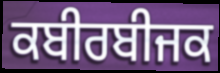
ਕਬੀਰਬੀਜਕ